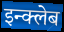
इन्क्लेब